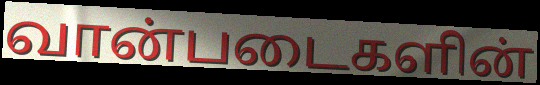
வான்படைகளின்